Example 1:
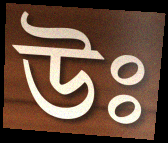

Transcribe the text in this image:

উঃ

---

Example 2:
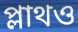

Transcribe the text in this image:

প্লাথও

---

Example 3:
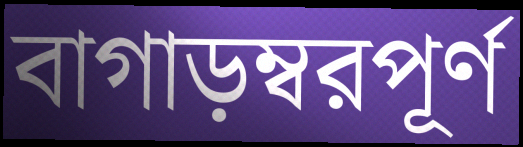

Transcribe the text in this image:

বাগাড়ম্বরপূর্ণ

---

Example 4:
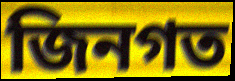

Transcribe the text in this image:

জিনগত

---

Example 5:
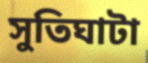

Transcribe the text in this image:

সুতিঘাটা